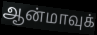
ஆன்மாவுக்